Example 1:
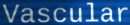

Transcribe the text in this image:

Vascular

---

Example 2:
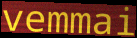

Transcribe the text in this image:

vemmai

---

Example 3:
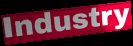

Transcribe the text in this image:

Industry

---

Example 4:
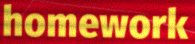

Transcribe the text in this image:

homework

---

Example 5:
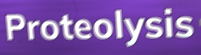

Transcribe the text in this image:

Proteolysis